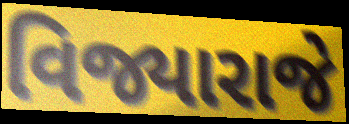
વિજ્યારાજે